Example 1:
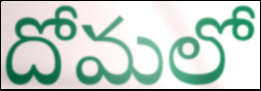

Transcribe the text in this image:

దోమలో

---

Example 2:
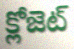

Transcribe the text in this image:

క్లోజెట్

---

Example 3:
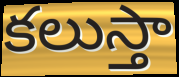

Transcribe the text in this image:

కలుస్తా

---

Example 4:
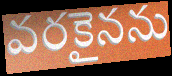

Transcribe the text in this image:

వరకైనను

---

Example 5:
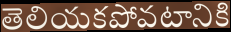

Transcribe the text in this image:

తెలియకపోవటానికి